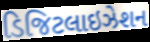
ડિજિટલાઇઝેશન